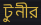
টুনীর